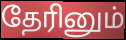
தேரினும்